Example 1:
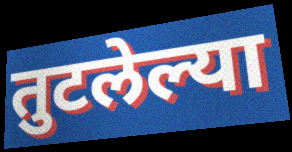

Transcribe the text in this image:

तुटलेल्या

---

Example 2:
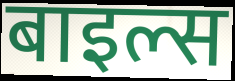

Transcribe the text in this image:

बाइल्स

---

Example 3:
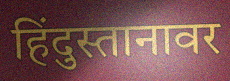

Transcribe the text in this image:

हिंदुस्तानावर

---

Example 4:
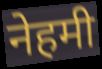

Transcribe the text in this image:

नेहमी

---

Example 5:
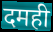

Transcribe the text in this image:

दमही